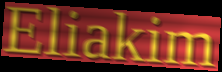
Eliakim